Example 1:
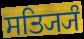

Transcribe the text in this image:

ਸਤ੍ਯ੍ਯਿੰ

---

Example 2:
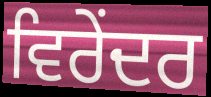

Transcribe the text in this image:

ਵਿਰੇਂਦਰ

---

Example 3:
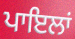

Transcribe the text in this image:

ਪਾਇਲਾਂ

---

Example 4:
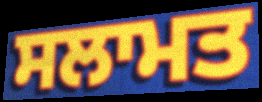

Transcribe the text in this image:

ਸਲਾਮਤ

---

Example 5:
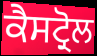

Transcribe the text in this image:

ਕੈਸਟ੍ਰੋਲ